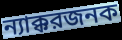
ন্যাক্করজনক